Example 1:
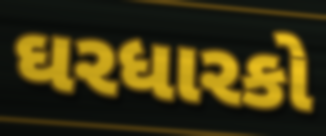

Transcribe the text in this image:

ઘરધારકો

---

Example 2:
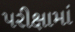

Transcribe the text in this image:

પરીક્ષામાં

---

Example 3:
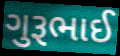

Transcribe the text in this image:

ગુરૂભાઈ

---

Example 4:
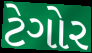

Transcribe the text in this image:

ટેગોર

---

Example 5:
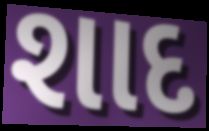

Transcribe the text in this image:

શાદ